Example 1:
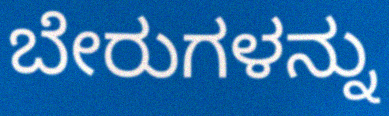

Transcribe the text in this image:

ಬೇರುಗಳನ್ನು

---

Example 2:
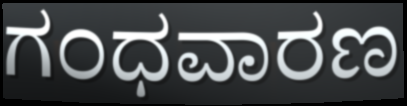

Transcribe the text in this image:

ಗಂಧವಾರಣ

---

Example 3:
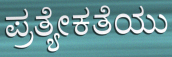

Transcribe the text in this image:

ಪ್ರತ್ಯೇಕತೆಯು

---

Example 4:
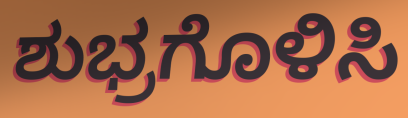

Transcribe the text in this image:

ಶುಭ್ರಗೊಳಿಸಿ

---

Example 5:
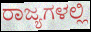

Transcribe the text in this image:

ರಾಜ್ಯಗಳಲ್ಲಿ